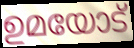
ഉമയോട്